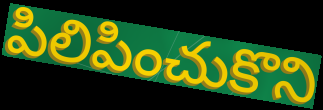
పిలిపించుకొని